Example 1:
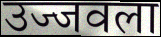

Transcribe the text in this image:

उज्‍जवला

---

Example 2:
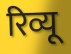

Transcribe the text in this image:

रिव्‍यू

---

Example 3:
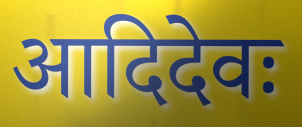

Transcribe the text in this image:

आदिदेवः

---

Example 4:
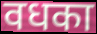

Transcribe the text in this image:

वधका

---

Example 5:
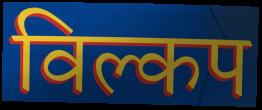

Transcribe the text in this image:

विल्कप